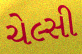
ચેલ્સી